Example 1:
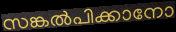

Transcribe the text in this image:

സങ്കൽപിക്കാനോ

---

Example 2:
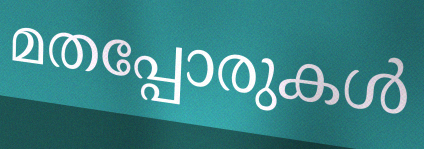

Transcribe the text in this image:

മതപ്പോരുകൾ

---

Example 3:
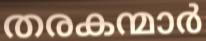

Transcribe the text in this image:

തരകന്മാർ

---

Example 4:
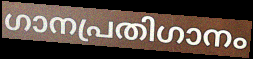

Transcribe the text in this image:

ഗാനപ്രതിഗാനം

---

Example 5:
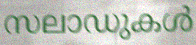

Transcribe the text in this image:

സലാഡുകൾ